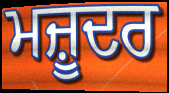
ਮਜ਼ੂਦਰ